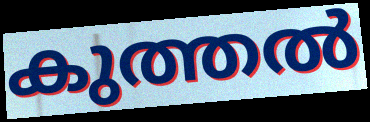
കുത്തൽ